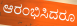
ಆರಂಭಿಸಿದರೂ